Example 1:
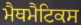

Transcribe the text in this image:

ਮੈਥਮੈਟਿਕਸ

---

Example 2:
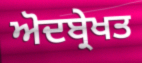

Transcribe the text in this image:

ਅੋਦਬ੍ਰੇਖਤ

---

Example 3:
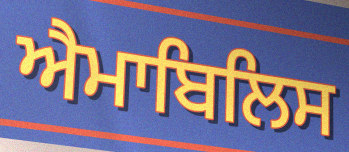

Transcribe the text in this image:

ਐਮਾਬਿਲਿਸ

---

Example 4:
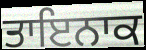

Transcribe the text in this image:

ਤਾਇਨਾਕ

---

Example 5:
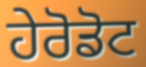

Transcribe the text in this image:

ਹੇਰੋਡੋਟ